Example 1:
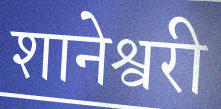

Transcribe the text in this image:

शानेश्वरी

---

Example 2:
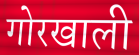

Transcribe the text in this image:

गोरखाली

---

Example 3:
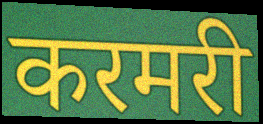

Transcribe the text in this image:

करमरी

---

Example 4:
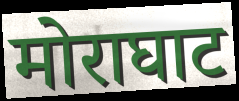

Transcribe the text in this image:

मोराघाट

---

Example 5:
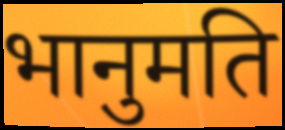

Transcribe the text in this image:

भानुमति